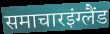
समाचारइंग्लैंड